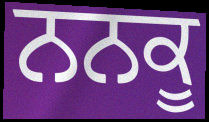
ਨਨਕੂ